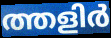
ത്തളിർ